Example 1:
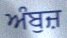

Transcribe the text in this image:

ਅੰਬੁਜ਼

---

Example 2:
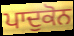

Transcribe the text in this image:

ਪਾਦੁਕੋਨ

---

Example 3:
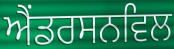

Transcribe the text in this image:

ਐਂਡਰਸਨਵਿਲ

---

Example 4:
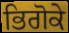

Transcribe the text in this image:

ਭਿਗੋਕੇ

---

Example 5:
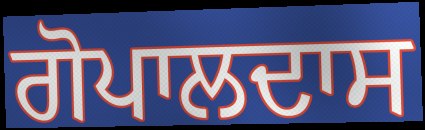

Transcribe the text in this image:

ਗੋਪਾਲਦਾਸ